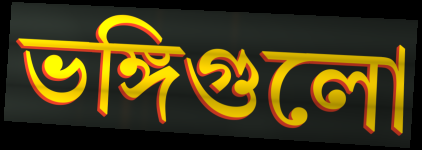
ভঙ্গিগুলো